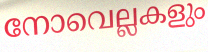
നോവെല്ലകളും